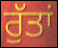
ਰੁੱਤਾਂ